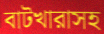
বাটখারাসহ